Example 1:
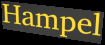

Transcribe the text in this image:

Hampel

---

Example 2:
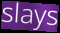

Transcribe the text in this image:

slays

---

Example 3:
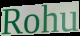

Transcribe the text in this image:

Rohu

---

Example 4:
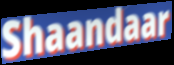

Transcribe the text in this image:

Shaandaar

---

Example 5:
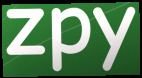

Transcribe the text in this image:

zpy